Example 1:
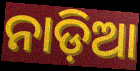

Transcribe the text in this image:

ନାଡ଼ିଆ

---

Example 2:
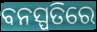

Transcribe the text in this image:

ବନସ୍ପତିରେ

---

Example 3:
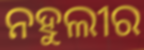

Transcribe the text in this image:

ନହୁଲୀର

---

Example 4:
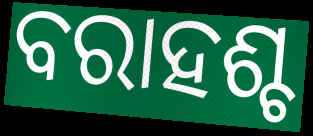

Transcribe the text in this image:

ବରାହଶ୍ଚ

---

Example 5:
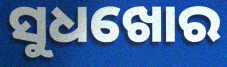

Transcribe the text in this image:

ସୁଧଖୋର